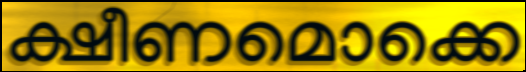
ക്ഷീണമൊക്കെ